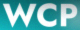
WCP